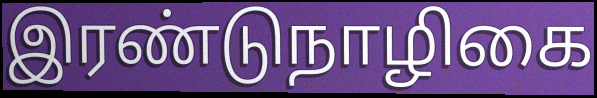
இரண்டுநாழிகை